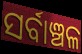
ସର୍ବାଞ୍ଚଳ